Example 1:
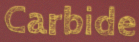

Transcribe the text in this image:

Carbide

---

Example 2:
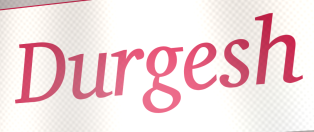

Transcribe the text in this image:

Durgesh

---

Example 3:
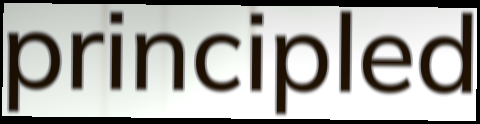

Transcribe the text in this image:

principled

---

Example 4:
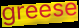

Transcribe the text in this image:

greese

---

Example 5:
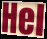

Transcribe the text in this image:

Hel